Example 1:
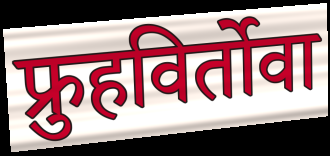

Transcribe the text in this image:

फ्रुहविर्तोवा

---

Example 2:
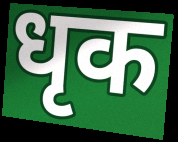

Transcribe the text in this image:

धृक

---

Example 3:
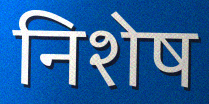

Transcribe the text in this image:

निशेष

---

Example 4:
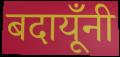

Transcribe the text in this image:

बदायूँनी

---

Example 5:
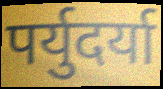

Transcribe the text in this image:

पर्युदर्या